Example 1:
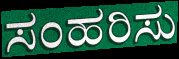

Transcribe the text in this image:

ಸಂಹರಿಸು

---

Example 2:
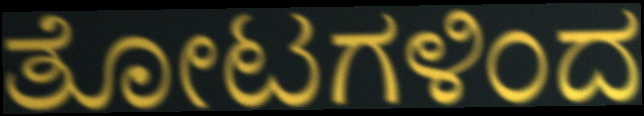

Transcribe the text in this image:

ತೋಟಗಳಿಂದ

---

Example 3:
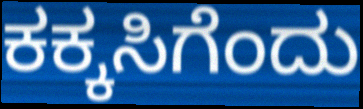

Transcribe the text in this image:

ಕಕ್ಕಸಿಗೆಂದು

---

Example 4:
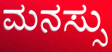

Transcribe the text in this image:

ಮನಸ್ಸು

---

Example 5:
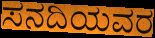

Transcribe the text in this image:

ಸನದಿಯವರ